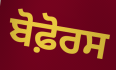
ਬੋਫ਼ੋਰਸ